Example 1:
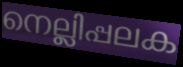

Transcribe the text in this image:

നെല്ലിപ്പലക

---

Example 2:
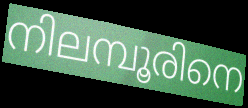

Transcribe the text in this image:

നിലമ്പൂരിനെ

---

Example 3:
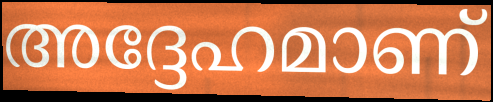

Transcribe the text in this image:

അദ്ദേഹമാണ്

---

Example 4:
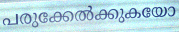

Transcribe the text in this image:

പരുക്കേൽക്കുകയോ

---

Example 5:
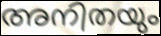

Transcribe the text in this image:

അനിതയും